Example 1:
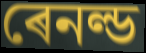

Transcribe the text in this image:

ৰেনল্ড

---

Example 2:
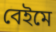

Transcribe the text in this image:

বেইমে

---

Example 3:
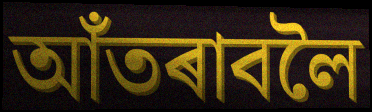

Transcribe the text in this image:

আঁতৰাবলৈ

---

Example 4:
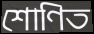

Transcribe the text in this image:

শোণিত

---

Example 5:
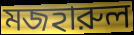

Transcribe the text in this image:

মজহাৰুল